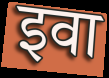
इवा